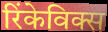
रिंकेविक्स